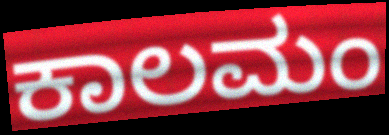
ಕಾಲಮಂ